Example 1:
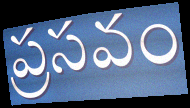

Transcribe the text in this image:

ప్రసవం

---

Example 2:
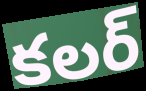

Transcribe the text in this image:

కలర్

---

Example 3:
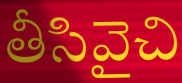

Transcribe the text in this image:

తీసివైచి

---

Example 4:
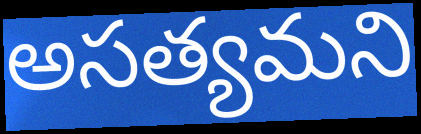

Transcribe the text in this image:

అసత్యమని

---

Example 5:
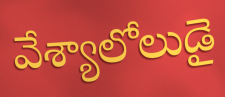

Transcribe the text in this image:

వేశ్యాలోలుడై